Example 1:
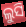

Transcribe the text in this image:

ଲୁସି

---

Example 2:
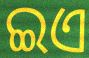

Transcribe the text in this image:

ଇଏ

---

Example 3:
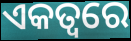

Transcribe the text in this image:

ଏକତ୍ୱରେ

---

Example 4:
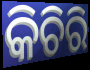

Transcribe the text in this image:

କିଚିରି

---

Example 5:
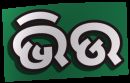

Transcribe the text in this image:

ଭିଉ